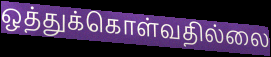
ஒத்துக்கொள்வதில்லை